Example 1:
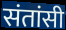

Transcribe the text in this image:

संतांसी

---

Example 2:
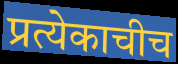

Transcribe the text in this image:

प्रत्येकाचीच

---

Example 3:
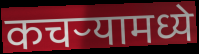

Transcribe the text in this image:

कचऱ्यामध्ये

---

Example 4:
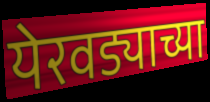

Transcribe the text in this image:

येरवड्याच्या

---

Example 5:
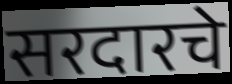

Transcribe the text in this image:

सरदारचे